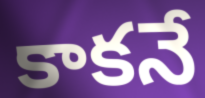
కాకనే